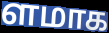
ளமாக